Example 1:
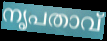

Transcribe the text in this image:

നൃപതാവ്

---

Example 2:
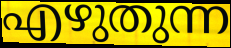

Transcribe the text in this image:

എഴുതുന്ന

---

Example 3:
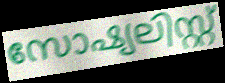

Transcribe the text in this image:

സോഷ്യലിസ്റ്റ്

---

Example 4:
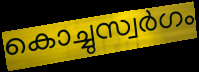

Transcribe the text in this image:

കൊച്ചുസ്വർഗം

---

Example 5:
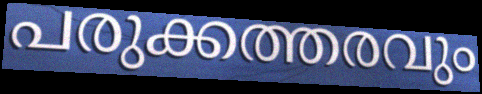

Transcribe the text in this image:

പരുക്കത്തരവും